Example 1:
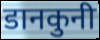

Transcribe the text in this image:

डानकुनी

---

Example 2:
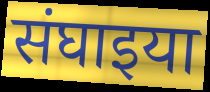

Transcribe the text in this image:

संघाइया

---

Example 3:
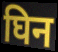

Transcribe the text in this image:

घिन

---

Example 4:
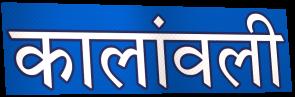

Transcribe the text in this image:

कालांवली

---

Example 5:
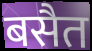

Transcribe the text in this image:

बसैत